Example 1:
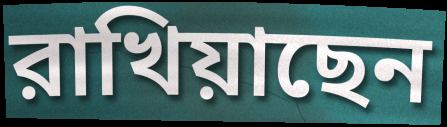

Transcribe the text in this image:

রাখিয়াছেন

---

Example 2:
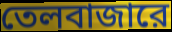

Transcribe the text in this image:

তেলবাজারে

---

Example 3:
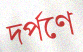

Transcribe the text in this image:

দর্পণে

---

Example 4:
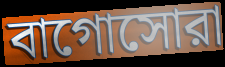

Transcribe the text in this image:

বাগোসোরা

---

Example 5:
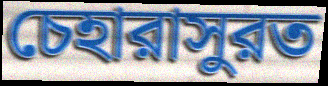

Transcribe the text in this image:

চেহারাসুরত